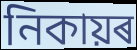
নিকায়ৰ